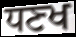
ਧਣਖ